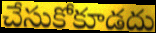
చేసుకోకూడదు